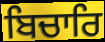
ਬਿਚਾਰਿ